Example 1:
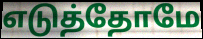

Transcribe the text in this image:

எடுத்தோமே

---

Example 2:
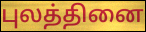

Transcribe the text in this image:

புலத்தினை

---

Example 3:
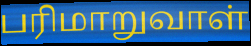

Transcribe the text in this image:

பரிமாறுவாள்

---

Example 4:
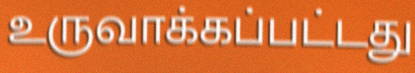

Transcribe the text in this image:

உருவாக்கப்பட்டது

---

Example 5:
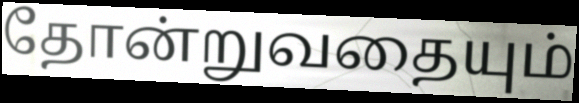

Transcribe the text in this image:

தோன்றுவதையும்